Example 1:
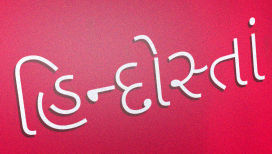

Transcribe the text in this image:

હિન્દોસ્તાં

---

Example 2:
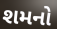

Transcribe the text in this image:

શમનો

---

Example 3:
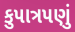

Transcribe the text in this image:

કુપાત્રપણું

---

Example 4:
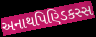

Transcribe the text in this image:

અનાથપિણ્ડિકસ્સ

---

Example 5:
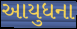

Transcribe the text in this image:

આયુધના